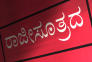
ರಾಜೀಸೂತ್ರದ